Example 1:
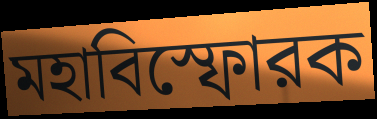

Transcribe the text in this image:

মহাবিস্ফোরক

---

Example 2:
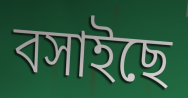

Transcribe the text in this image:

বসাইছে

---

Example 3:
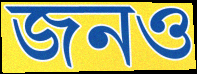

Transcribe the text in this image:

জনও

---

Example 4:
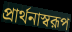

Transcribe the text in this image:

প্রার্থনাস্বরূপ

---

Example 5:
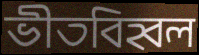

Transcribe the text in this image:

ভীতবিহ্বল